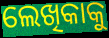
ଲେଖିକାକୁ